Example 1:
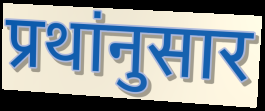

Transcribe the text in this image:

प्रथांनुसार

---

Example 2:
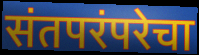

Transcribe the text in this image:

संतपरंपरेचा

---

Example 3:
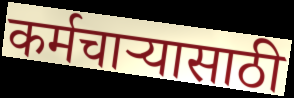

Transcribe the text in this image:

कर्मचाऱ्यासाठी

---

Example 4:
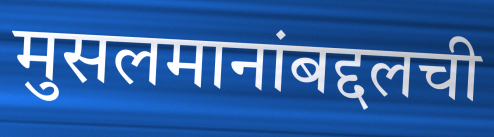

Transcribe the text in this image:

मुसलमानांबद्दलची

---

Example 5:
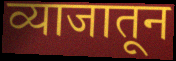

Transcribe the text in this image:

व्याजातून